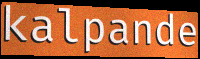
kalpande